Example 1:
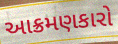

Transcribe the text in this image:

આક્રમણકારો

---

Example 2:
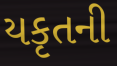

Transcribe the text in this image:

યકૃતની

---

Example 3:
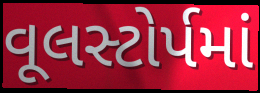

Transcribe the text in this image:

વૂલસ્ટોર્પમાં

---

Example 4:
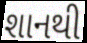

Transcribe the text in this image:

શાનથી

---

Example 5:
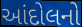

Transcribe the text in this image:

આંદોલનો